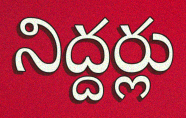
నిద్దర్లు